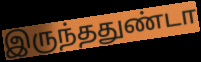
இருந்ததுண்டா